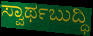
ಸ್ವಾರ್ಥಬುದ್ಧಿ